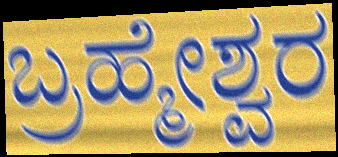
ಬ್ರಹ್ಮೇಶ್ವರ